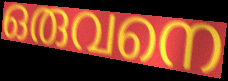
ഒരുവനെ